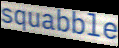
squabble